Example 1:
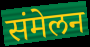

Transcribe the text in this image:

संमेलन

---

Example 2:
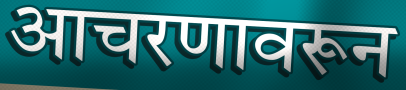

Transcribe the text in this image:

आचरणावरून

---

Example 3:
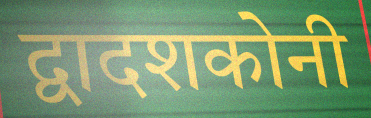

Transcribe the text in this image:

द्वादशकोनी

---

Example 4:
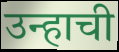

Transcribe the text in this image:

उन्हाची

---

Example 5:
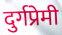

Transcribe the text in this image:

दुर्गप्रेमी